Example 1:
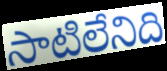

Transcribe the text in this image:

సాటిలేనిది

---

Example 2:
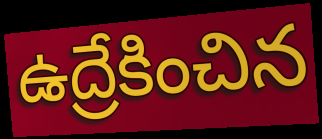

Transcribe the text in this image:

ఉద్రేకించిన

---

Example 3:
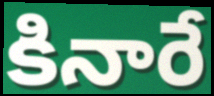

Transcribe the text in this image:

కినారే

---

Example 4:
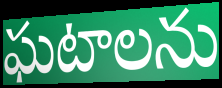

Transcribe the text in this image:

ఘటాలను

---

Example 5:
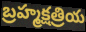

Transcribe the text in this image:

బ్రహ్మక్షత్రియ